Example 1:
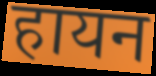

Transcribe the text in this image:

हायन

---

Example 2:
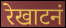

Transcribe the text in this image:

रेखाटनं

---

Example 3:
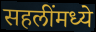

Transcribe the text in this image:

सहलींमध्ये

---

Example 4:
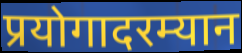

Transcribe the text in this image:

प्रयोगादरम्यान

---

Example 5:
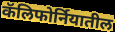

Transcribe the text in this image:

कॅलिफोर्नियातील